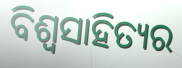
ବିଶ୍ଵସାହିତ୍ୟର